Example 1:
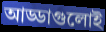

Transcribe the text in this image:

আড্ডাগুলোই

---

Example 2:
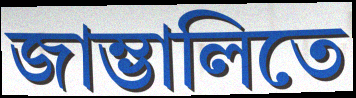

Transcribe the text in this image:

জাম্ভালিতে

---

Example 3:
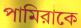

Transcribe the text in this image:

পামিরাকে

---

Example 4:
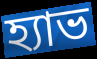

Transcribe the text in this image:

হ্যাভ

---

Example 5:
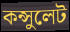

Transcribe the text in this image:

কন্সুলেট